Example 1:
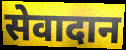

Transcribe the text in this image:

सेवादान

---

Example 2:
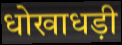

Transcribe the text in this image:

धोखाधड़ी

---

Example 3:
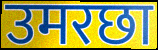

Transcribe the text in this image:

उमरछा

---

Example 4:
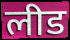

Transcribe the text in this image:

लीड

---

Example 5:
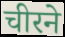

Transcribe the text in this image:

चीरने